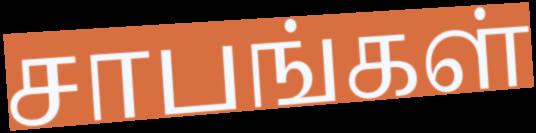
சாபங்கள்